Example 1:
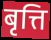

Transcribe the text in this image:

बृत्ति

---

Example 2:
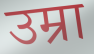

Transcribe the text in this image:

उम्रा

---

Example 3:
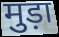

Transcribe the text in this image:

मुड़ा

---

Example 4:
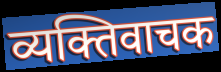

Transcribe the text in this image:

व्यक्तिवाचक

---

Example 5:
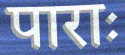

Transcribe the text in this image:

पाराः